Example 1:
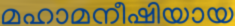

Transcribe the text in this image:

മഹാമനീഷിയായ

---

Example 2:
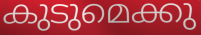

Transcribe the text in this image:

കുടുമെക്കു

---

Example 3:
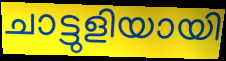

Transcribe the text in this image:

ചാട്ടുളിയായി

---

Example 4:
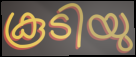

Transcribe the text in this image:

കൂടിയു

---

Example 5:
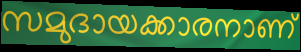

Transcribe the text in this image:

സമുദായക്കാരനാണ്